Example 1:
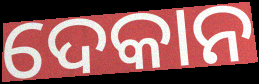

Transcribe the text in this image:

ଦେକାନ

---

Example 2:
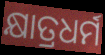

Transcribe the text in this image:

କ୍ଷାତ୍ରଧର୍ମ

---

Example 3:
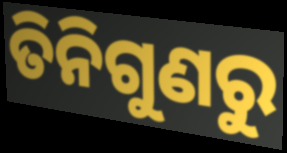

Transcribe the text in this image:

ତିନିଗୁଣରୁ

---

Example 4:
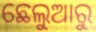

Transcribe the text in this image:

ଛେଲୁଆରୁ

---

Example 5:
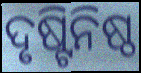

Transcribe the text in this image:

ଦୃଷ୍ଟିନିଷ୍ଠ